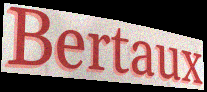
Bertaux